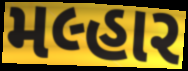
મલ્હાર